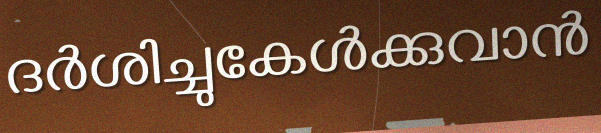
ദർശിച്ചുകേൾക്കുവാൻ